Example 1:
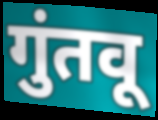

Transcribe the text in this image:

गुंतवू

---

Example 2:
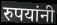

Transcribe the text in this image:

रुपयांनी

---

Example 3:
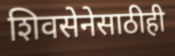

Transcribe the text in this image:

शिवसेनेसाठीही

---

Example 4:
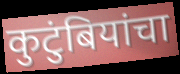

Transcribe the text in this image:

कुटुंबियांचा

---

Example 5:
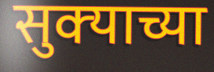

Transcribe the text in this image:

सुक्‍याच्या